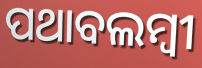
ପଥାବଲମ୍ବୀ